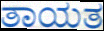
ತಾಯತ